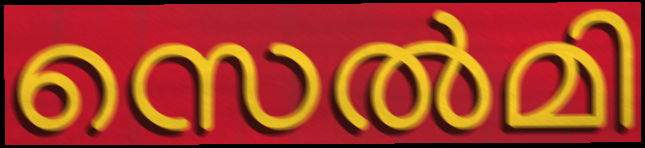
സെൽമി